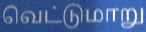
வெட்டுமாறு